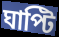
ঘাপ্টি